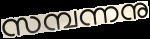
സമ്പന്നനു